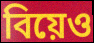
বিয়েও